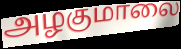
அழகுமாலை